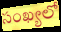
సంఖ్యలో